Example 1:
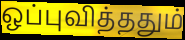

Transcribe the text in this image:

ஒப்புவித்ததும்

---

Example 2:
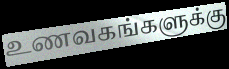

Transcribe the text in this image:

உணவகங்களுக்கு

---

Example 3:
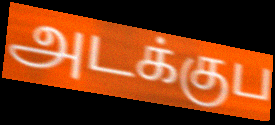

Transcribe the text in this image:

அடக்குப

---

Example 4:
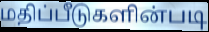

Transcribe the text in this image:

மதிப்பீடுகளின்படி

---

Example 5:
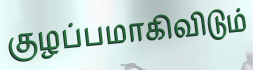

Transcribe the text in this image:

குழப்பமாகிவிடும்